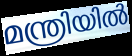
മന്ത്രിയിൽ